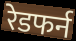
रेडफर्न